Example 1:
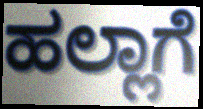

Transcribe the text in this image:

ಹಲ್ಲಾಗೆ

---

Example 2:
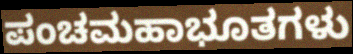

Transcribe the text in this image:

ಪಂಚಮಹಾಭೂತಗಳು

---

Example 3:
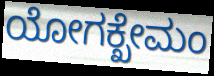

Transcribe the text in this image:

ಯೋಗಕ್ಖೇಮಂ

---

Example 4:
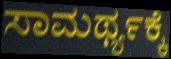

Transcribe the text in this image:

ಸಾಮರ್ಥ್ಯಕ್ಕೆ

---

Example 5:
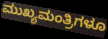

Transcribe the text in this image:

ಮುಖ್ಯಮಂತ್ರಿಗಳೂ